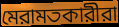
মেরামতকারীরা